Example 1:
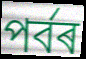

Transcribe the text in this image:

পৰ্বৰ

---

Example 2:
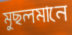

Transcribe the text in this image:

মুছলমানে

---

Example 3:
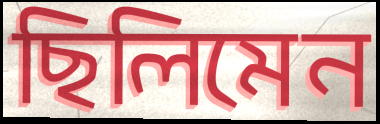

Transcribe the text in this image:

ছিলিমেন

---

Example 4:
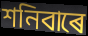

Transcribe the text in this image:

শনিবাৰে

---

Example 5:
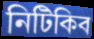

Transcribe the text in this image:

নিটিকিব